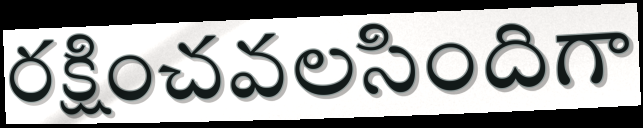
రక్షించవలసిందిగా